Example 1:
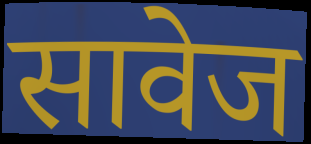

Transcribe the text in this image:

सावेज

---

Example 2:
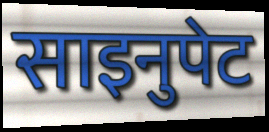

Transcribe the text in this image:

साइनुपेट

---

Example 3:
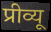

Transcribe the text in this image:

प्रीव्यू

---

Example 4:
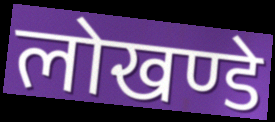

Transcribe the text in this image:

लोखण्डे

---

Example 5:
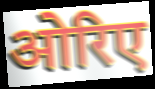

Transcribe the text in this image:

ओरिए